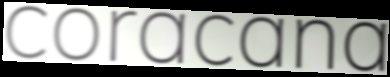
coracana